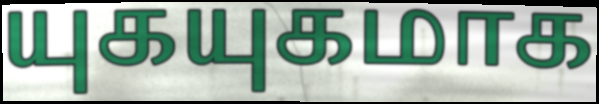
யுகயுகமாக